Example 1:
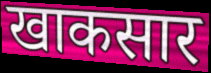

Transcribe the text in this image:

खाकसार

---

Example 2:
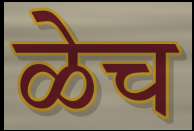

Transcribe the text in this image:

ळेच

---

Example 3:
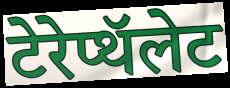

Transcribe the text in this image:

टेरेप्थॅलेट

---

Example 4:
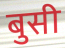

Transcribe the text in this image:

बुसी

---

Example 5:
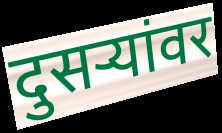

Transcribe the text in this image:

दुसर्‍यांवर